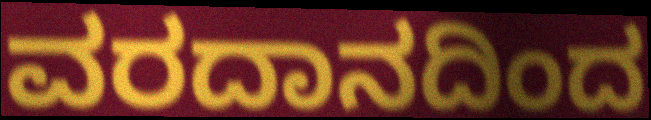
ವರದಾನದಿಂದ